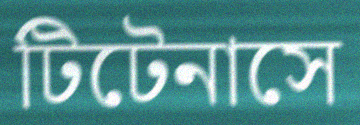
টিটেনাসে